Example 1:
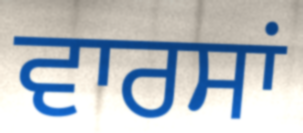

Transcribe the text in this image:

ਵਾਰਸਾਂ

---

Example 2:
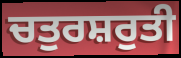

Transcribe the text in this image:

ਚਤੁਰਸ਼ਰੁਤੀ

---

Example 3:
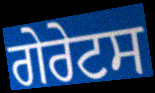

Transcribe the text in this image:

ਗੇਰੇਟਸ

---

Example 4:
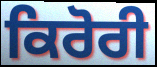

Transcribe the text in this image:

ਕਿਰੋਰੀ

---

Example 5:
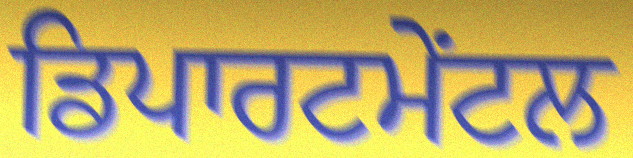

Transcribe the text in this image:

ਡਿਪਾਰਟਮੇਂਟਲ